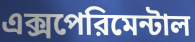
এক্সপেরিমেন্টাল